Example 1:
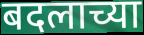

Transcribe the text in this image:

बदलाच्या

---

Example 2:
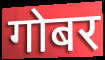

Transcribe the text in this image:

गोबर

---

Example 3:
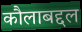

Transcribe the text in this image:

कौलाबद्दल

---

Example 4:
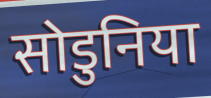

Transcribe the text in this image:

सोडुनिया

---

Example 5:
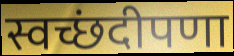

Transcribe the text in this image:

स्वच्छंदीपणा